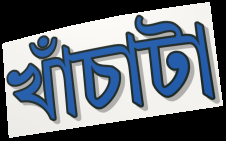
খাঁচাটা